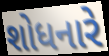
શોધનારે